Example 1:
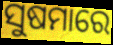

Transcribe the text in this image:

ସୁଷମାରେ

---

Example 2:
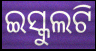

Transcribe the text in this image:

ଇସ୍କୁଲଟି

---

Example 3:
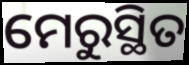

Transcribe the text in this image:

ମେରୁସ୍ଥିତ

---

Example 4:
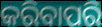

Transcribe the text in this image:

କରିବାପରି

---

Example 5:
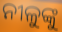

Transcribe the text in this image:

ନୀଳୁଙ୍କୁ